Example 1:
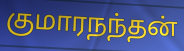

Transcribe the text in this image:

குமாரநந்தன்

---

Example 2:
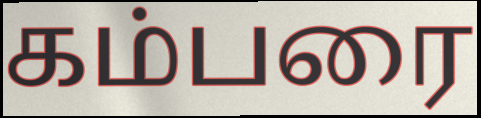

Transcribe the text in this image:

கம்பரை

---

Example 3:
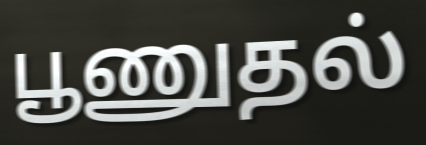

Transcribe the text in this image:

பூணுதல்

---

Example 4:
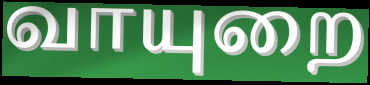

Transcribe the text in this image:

வாயுறை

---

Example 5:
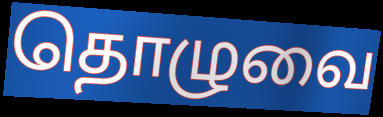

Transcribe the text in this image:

தொழுவை